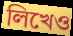
লিখেও